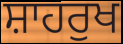
ਸ਼ਾਹਰੁਖ